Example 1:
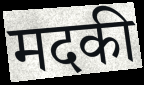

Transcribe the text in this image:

मदकी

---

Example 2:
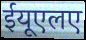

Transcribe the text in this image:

ईयूएलए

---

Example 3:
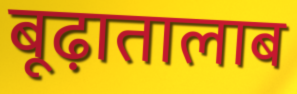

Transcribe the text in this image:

बूढ़ातालाब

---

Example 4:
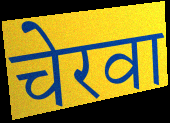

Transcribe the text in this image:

चेरवा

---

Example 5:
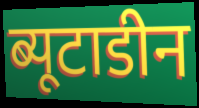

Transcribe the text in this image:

ब्यूटाडीन